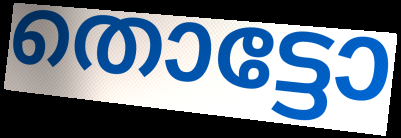
തൊട്ടോ